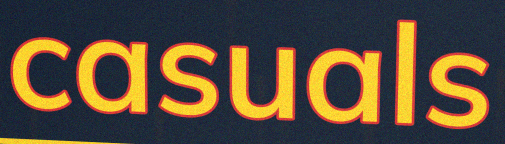
casuals